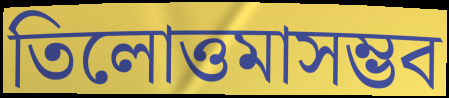
তিলোত্তমাসম্ভব